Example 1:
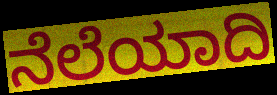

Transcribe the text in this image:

ನೆಲೆಯಾದಿ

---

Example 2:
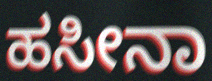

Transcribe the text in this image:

ಹಸೀನಾ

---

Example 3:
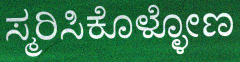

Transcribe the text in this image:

ಸ್ಮರಿಸಿಕೊಳ್ಳೋಣ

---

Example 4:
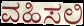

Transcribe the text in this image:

ವಹಿಸಲಿ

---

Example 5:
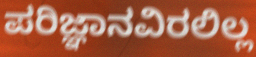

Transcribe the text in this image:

ಪರಿಜ್ಞಾನವಿರಲಿಲ್ಲ